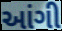
આંગી